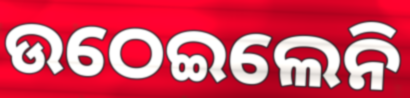
ଉଠେଇଲେନି